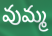
వుమ్మ